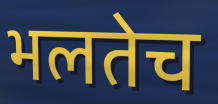
भलतेच